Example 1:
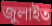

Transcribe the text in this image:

জুলাইত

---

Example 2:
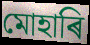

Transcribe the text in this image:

মোহাৰি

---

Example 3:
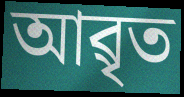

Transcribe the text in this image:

আৱৃত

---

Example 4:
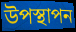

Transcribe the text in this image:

উপস্থাপন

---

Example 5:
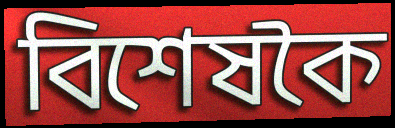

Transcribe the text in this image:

বিশেষকৈ